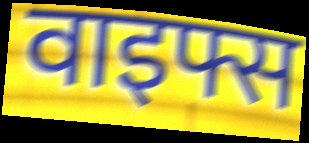
वाइफ्स